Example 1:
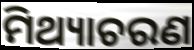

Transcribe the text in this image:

ମିଥ୍ୟାଚରଣ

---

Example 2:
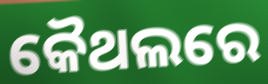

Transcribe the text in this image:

କୈଥଲରେ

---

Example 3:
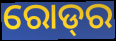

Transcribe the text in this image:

ରୋଡ୍‌ର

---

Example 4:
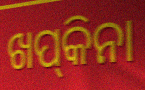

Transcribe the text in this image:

ଖପ୍‍କିନା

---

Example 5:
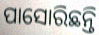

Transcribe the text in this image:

ପାସୋରିଛନ୍ତି